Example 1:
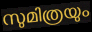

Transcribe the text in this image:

സുമിത്രയും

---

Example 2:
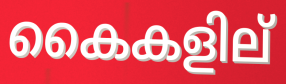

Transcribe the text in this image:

കൈകളില്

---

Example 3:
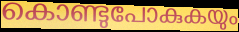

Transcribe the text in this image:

കൊണ്ടുപോകുകയും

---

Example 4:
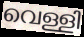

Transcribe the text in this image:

വെള്ളി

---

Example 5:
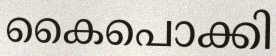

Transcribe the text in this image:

കൈപൊക്കി